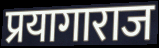
प्रयागाराज